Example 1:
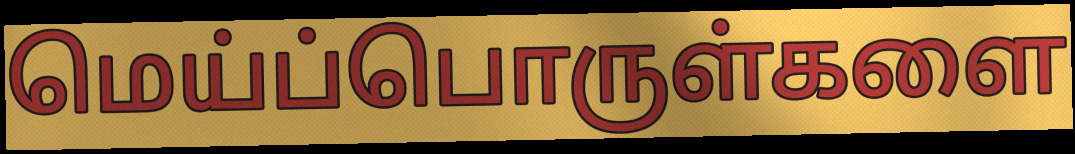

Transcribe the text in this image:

மெய்ப்பொருள்களை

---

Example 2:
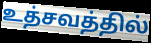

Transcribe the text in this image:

உத்சவத்தில்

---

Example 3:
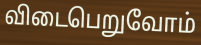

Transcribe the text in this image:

விடைபெறுவோம்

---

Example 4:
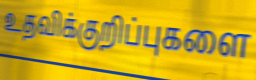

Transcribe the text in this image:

உதவிக்குறிப்புகளை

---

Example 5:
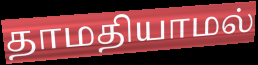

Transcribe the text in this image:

தாமதியாமல்